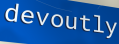
devoutly